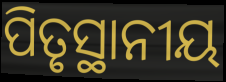
ପିତୃସ୍ଥାନୀୟ